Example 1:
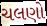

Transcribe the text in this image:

ચલણો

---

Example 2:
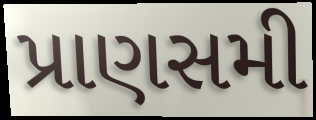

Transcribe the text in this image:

પ્રાણસમી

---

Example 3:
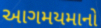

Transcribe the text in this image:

આગમયમાનો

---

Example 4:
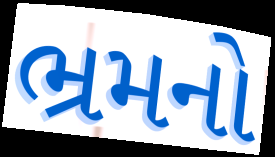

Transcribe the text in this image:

ભ્રમનો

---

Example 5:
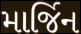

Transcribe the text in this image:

માર્જિન